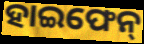
ହାଇଫେନ୍